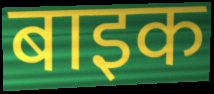
बाइक